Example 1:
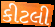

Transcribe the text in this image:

કીટલી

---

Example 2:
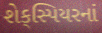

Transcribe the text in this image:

શેક્‌સ્પિયરનાં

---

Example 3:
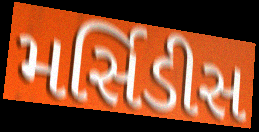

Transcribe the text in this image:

મર્સિડીસ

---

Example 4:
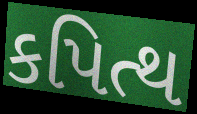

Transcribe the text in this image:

કપિત્થ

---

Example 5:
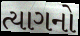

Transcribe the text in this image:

ત્યાગનો